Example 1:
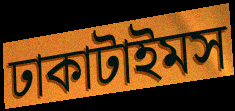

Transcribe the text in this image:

ঢাকাটাইমস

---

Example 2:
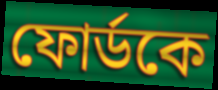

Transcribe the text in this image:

ফোর্ডকে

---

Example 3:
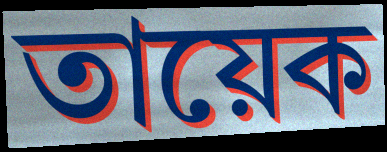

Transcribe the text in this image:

তায়েক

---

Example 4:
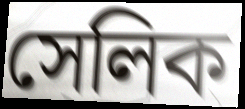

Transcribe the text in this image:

সেলিক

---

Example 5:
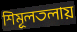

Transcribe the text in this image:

শিমূলতলায়